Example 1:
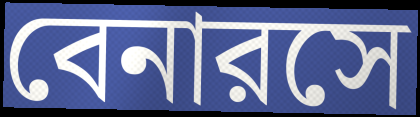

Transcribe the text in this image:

বেনারসে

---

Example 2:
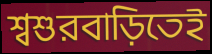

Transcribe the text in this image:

শ্বশুরবাড়িতেই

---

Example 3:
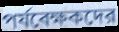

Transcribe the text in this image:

পর্যবেক্ষকদের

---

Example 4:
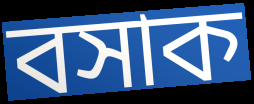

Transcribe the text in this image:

বসাক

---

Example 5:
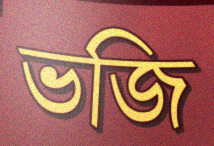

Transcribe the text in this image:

ভজি